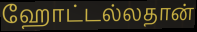
ஹோட்டல்லதான்